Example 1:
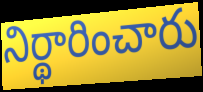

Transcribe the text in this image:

నిర్థారించారు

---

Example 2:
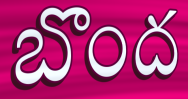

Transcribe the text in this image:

బొంద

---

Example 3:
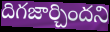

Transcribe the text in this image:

దిగజార్చిందని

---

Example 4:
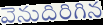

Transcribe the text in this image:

వెనుదిరిగిన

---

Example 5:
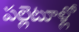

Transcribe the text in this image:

పల్లెటూళ్లో